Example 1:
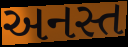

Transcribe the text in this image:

અનસ્ત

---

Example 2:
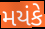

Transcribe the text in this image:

મયંકે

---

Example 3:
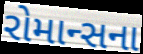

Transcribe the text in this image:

રોમાન્સના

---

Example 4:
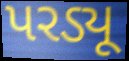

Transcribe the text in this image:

પરડ્યૂ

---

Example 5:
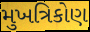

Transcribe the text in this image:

મુખત્રિકોણ